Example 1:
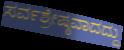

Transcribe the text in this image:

ಸರ್ವಶ್ರೇಷ್ಠವಾದದ್ದು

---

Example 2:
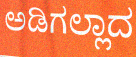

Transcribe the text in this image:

ಅಡಿಗಲ್ಲಾದ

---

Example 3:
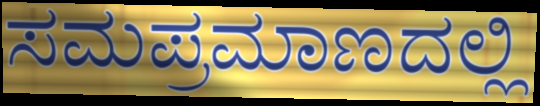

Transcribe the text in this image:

ಸಮಪ್ರಮಾಣದಲ್ಲಿ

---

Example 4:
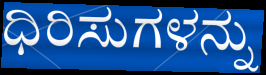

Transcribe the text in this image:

ಧಿರಿಸುಗಳನ್ನು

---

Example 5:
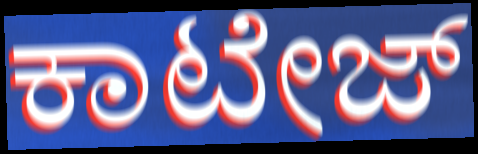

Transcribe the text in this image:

ಕಾಟೇಜ್